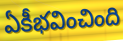
ఏకీభవించింది